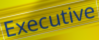
Executive